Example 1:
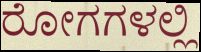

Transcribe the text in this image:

ರೋಗಗಳಲ್ಲಿ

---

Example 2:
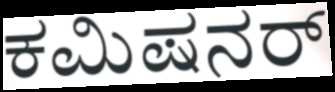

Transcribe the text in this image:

ಕಮಿಷನರ್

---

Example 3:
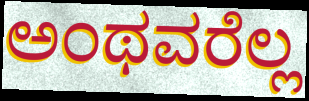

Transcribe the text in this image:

ಅಂಥವರೆಲ್ಲ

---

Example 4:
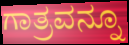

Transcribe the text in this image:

ಗಾತ್ರವನ್ನೂ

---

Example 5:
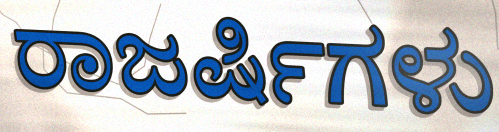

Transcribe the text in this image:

ರಾಜರ್ಷಿಗಳು